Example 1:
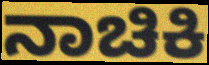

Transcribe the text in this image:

ನಾಚಿಕಿ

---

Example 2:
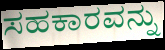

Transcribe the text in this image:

ಸಹಕಾರವನ್ನು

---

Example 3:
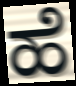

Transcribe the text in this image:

ಹೆ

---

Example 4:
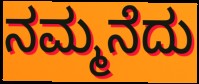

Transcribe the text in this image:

ನಮ್ಮನೆದು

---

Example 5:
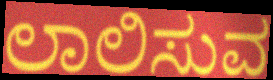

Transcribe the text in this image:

ಲಾಲಿಸುವ